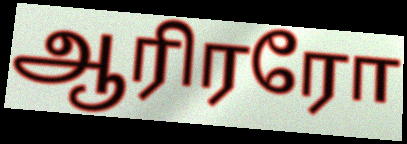
ஆரிரரோ